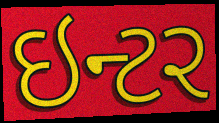
ઇન્ટર